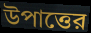
উপাত্তের